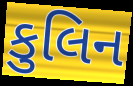
કુલિન